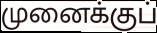
முனைக்குப்